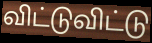
விட்டுவிட்டு